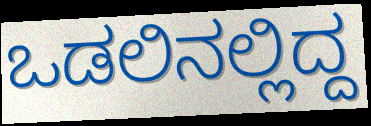
ಒಡಲಿನಲ್ಲಿದ್ದ